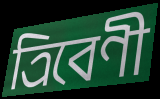
ত্ৰিবেণী